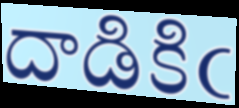
దాడికిఁ